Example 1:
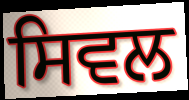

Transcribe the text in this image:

ਸਿਵਲ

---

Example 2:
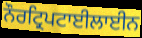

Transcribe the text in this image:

ਨੌਰਟ੍ਰਿਪਟਾਈਲਾਈਨ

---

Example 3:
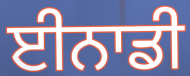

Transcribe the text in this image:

ਈਨਾਡੀ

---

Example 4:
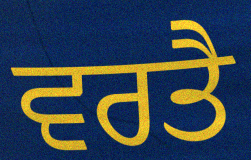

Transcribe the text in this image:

ਵਰਤੈ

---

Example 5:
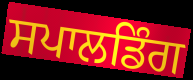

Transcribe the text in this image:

ਸਪਾਲਡਿੰਗ